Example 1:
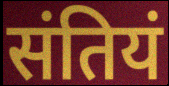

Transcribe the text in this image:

संतियं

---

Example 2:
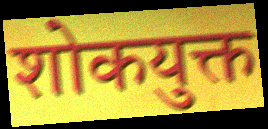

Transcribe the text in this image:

शोकयुक्त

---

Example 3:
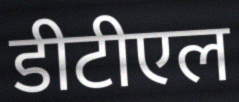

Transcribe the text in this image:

डीटीएल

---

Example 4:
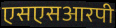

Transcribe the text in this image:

एसएसआरपी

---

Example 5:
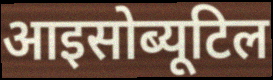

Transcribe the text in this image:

आइसोब्यूटिल